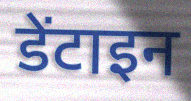
डेंटाइन